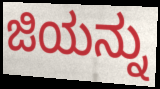
ಜಿಯನ್ನು